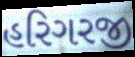
હરિગરજી